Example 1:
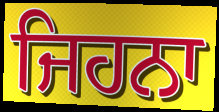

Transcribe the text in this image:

ਜਿਹਨਾ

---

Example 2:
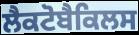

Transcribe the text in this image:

ਲੈਕਟੋਬੈਕਿਲਸ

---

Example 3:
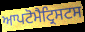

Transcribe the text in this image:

ਆਪਟੋਮੈਟ੍ਰਿਸਟਸ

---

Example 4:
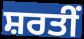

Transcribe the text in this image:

ਸ਼ਰਤੀਂ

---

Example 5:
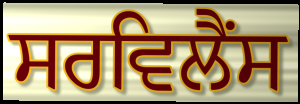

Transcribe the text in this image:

ਸਰਵਿਲੈਂਸ